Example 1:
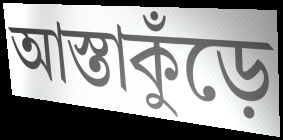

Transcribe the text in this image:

আস্তাকুঁড়ে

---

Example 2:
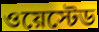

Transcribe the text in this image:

ওয়েস্টেড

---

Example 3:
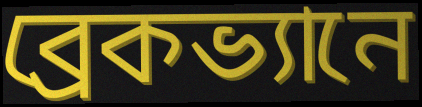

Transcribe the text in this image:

ব্রেকভ্যানে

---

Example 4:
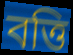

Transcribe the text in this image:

বত্তি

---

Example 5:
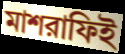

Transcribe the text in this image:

মাশরাফিই